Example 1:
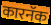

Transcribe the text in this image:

कारनॅक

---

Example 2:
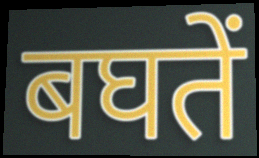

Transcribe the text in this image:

बघतें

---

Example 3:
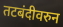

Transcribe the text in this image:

तटबंदीवरुन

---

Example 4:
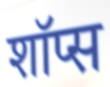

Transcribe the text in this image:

शॉप्स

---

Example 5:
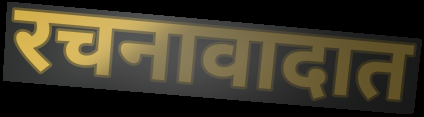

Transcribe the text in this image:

रचनावादात